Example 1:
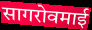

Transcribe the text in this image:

सागरोवमाई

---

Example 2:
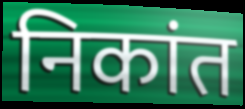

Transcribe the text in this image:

निकांत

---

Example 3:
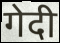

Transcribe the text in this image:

गेदी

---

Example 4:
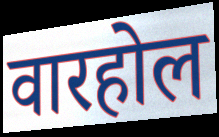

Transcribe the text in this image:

वारहोल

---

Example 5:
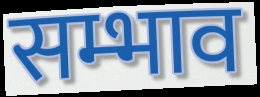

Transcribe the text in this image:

सम्भाव